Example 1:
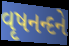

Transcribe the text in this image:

વૃષનન્દને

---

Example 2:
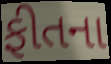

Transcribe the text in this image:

ફીતના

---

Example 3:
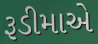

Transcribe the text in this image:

રૂડીમાએ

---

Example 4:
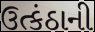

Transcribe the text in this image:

ઉત્કંઠાની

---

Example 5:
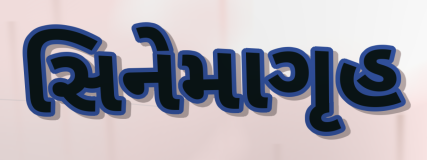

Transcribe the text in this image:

સિનેમાગૃહ